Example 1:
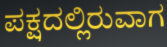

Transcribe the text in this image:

ಪಕ್ಷದಲ್ಲಿರುವಾಗ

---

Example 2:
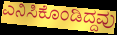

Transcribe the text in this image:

ಎನಿಸಿಕೊಂಡಿದ್ದವು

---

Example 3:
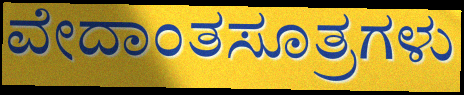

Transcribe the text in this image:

ವೇದಾಂತಸೂತ್ರಗಳು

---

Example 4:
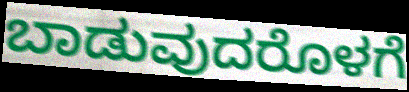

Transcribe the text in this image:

ಬಾಡುವುದರೊಳಗೆ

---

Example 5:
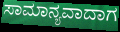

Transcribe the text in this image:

ಸಾಮಾನ್ಯವಾದಾಗ